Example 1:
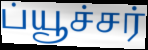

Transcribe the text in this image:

ப்யூச்சர்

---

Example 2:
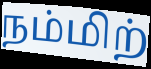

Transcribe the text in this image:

நம்மிற்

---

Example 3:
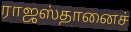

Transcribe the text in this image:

ராஜஸ்தானைச்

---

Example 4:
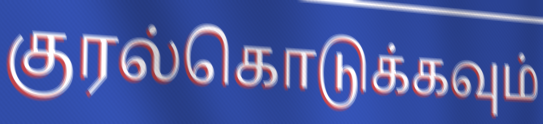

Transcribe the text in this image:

குரல்கொடுக்கவும்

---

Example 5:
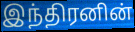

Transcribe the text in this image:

இந்திரனின்